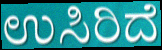
ಉಸಿರಿದೆ